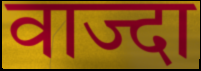
वाज्दा